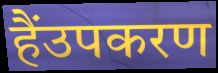
हैंउपकरण